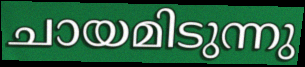
ചായമിടുന്നു